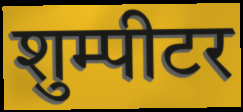
शुम्पीटर